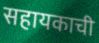
सहायकाची